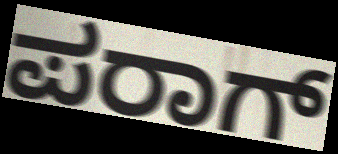
ಪರಾಗ್